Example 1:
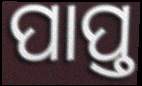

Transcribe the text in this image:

ପାପ୍ତ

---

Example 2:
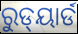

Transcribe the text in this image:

ରୁଡ୍‌ୟାର୍ଡ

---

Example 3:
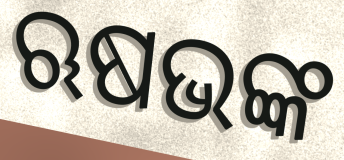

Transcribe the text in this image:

ଋଷଭଙ୍କ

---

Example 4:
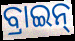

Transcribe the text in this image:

ବ୍ରାଇନ୍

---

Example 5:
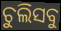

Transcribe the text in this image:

ଚୁଲିସବୁ